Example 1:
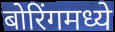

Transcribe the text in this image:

बोरिंगमध्ये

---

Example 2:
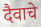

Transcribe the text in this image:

दैवाचे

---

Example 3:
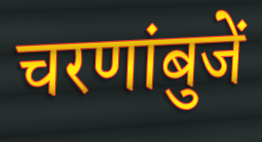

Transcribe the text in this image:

चरणांबुजें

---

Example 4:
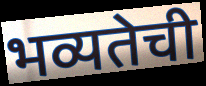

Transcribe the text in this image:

भव्यतेची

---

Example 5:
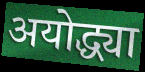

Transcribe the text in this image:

अयोद्ध्या